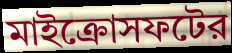
মাইক্রোসফটের